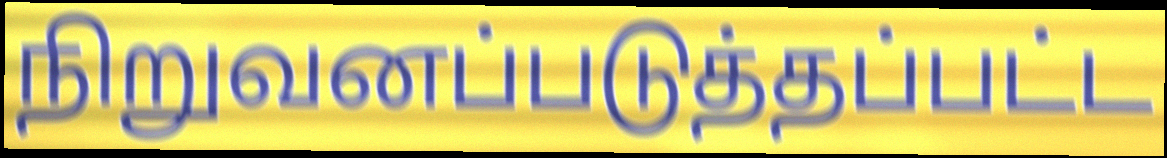
நிறுவனப்படுத்தப்பட்ட